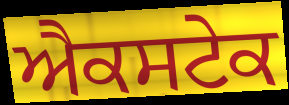
ਐਕਸਟੇਕ